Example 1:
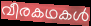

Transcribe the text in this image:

വീരകഥകൾ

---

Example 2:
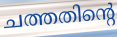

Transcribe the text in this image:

ചത്തതിന്റെ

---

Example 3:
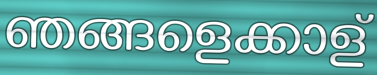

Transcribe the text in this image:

ഞങ്ങളെക്കാള്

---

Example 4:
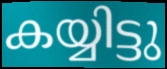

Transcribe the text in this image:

കയ്യിട്ടു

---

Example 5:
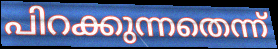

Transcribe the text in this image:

പിറക്കുന്നതെന്ന്